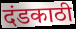
दंडकाठी